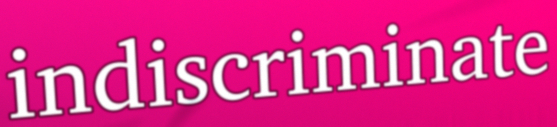
indiscriminate